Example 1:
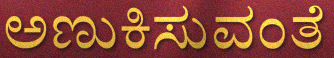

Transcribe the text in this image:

ಅಣುಕಿಸುವಂತೆ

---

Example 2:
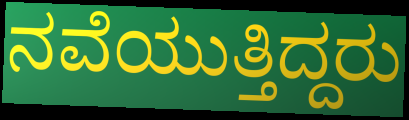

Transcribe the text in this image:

ನವೆಯುತ್ತಿದ್ದರು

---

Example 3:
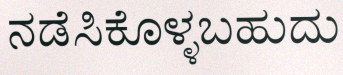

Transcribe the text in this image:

ನಡೆಸಿಕೊಳ್ಳಬಹುದು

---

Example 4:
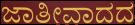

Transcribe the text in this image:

ಜಾತೀವಾದದ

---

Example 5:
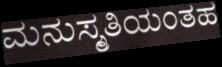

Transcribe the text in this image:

ಮನುಸ್ಮೃತಿಯಂತಹ